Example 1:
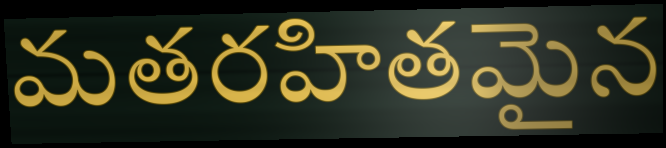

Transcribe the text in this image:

మతరహితమైన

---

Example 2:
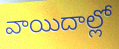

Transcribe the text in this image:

వాయిదాల్లో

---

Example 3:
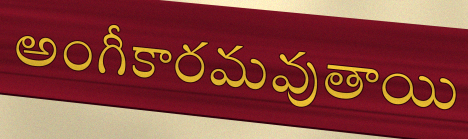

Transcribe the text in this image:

అంగీకారమవుతాయి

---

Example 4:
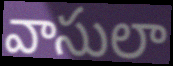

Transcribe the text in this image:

వాసులా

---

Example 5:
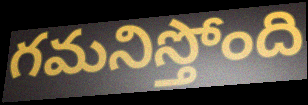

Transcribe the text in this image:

గమనిస్తోంది